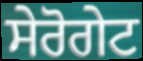
ਸੇਰੋਗੇਟ